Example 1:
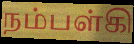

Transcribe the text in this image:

நம்பள்கி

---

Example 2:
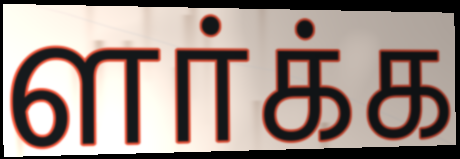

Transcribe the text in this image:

ளர்க்க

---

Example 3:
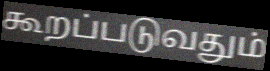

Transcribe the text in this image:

கூறப்படுவதும்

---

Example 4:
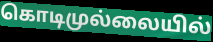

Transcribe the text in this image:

கொடிமுல்லையில்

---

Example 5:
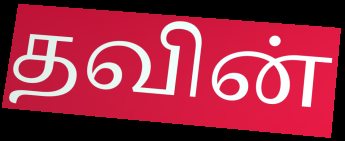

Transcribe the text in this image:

தவின்